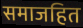
समाजहित